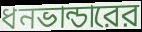
ধনভান্ডারের